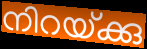
നിറയ്‌ക്കു